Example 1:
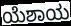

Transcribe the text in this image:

ಯೆಶಾಯ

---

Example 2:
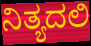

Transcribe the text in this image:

ನಿತ್ಯದಲಿ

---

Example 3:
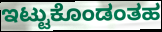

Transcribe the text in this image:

ಇಟ್ಟುಕೊಂಡಂತಹ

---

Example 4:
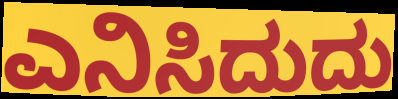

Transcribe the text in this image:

ಎನಿಸಿದುದು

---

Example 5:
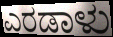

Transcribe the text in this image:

ಎರಡಾಳು